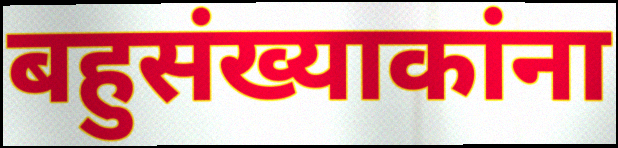
बहुसंख्याकांना